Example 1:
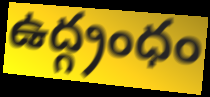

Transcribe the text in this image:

ఉద్గ్రంధం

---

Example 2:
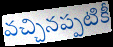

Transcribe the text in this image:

వచ్చినప్పటికీ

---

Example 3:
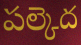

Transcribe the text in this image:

పల్కెద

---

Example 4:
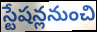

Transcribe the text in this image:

స్టేషన్లనుంచి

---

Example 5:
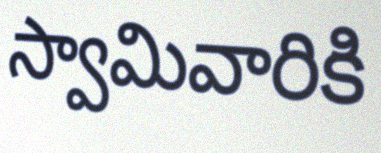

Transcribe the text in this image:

స్వామివారికి